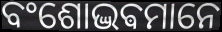
ବଂଶୋଦ୍ଭଵମାନେ